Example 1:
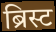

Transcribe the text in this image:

ब्रिस्ट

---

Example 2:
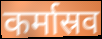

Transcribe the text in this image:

कर्मास्रव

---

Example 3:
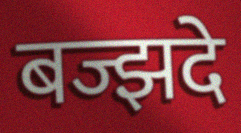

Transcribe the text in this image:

बज्झदे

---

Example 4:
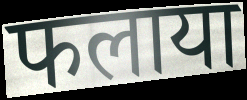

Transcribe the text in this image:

फलाया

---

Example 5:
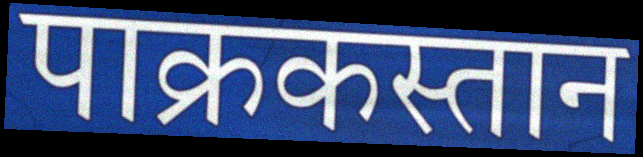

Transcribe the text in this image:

पाक्रकस्तान